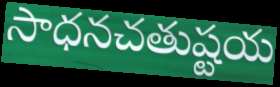
సాధనచతుష్టయ